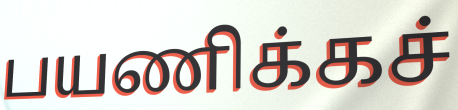
பயணிக்கச்